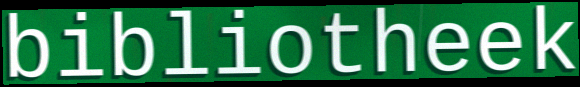
bibliotheek